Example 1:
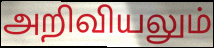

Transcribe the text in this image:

அறிவியலும்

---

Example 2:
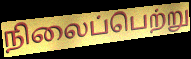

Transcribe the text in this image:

நிலைப்பெற்று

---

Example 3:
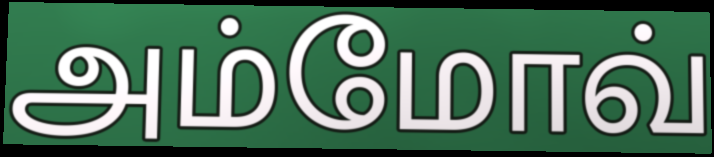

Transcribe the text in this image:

அம்மோவ்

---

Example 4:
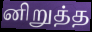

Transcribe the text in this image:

னிறுத்த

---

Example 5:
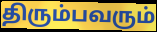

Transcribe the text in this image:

திரும்பவரும்